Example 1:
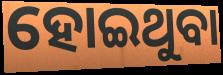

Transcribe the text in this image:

ହୋଇଥୁବା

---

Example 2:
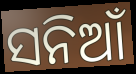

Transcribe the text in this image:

ସନିଆଁ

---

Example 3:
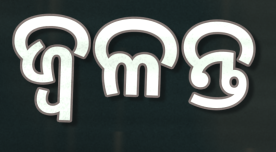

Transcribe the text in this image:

ଜ୍ଵଳନ୍ତ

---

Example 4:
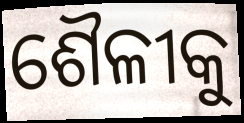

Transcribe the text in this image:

ଶୈଳୀକୁ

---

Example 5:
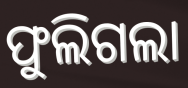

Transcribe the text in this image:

ଫୁଲିଗଲା